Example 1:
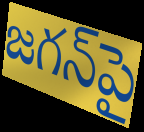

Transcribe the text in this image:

జగన్‌పై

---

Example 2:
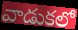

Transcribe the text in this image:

వాడుకలో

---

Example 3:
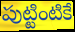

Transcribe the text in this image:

పుట్టింటికే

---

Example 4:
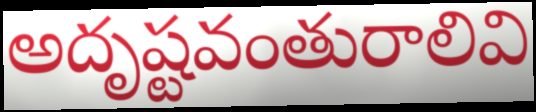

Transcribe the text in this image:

అదృష్టవంతురాలివి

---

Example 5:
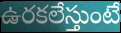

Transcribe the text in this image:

ఉరకలేస్తుంటే